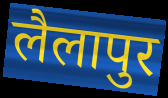
लैलापुर